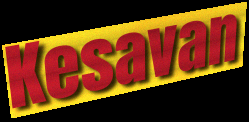
Kesavan